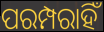
ପରମ୍ପରାହିଁ